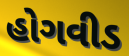
હોગવીડ